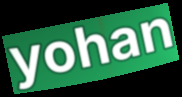
yohan